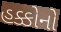
હક્કોનો